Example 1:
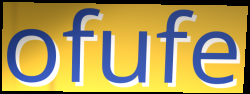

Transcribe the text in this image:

ofufe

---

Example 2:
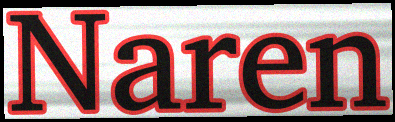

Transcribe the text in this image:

Naren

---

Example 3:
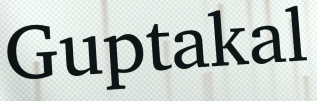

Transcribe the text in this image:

Guptakal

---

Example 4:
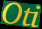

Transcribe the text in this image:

Oti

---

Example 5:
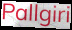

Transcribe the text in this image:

Pallgiri